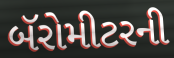
બૅરોમીટરની